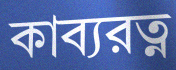
কাব্যরত্ন